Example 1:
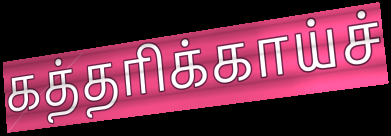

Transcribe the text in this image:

கத்தரிக்காய்ச்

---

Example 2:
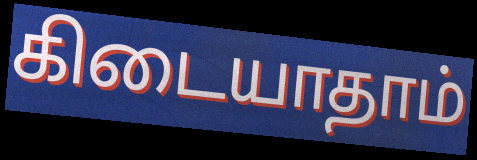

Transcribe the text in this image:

கிடையாதாம்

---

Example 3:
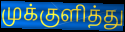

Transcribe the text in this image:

முக்குளித்து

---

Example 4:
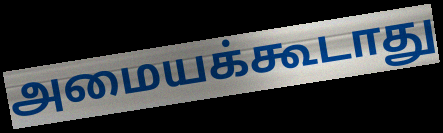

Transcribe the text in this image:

அமையக்கூடாது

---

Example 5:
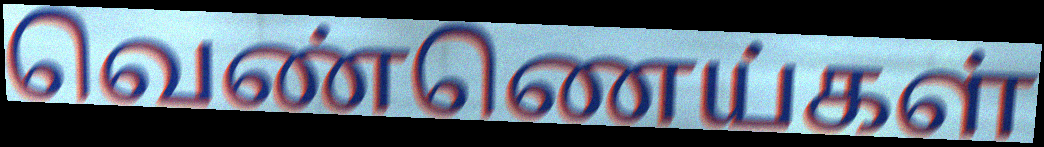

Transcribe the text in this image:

வெண்ணெய்கள்